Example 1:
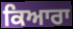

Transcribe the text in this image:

ਕਿਆਰਾ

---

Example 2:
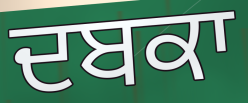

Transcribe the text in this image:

ਦਬਕਾ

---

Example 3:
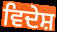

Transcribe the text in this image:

ਵਿਦੇਸ਼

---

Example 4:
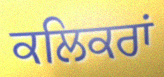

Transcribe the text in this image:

ਕਲਿਕਰਾਂ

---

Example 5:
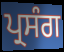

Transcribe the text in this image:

ਪ੍ਰਸੰਗ